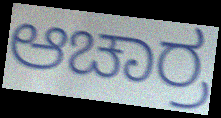
ಆಚಾರ್ರ